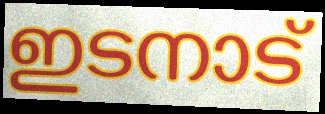
ഇടനാട്